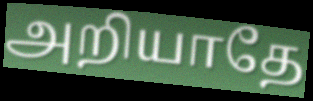
அறியாதே